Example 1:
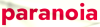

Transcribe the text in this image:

paranoia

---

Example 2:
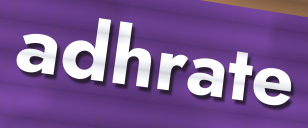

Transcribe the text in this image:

adhrate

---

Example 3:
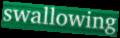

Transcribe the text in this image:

swallowing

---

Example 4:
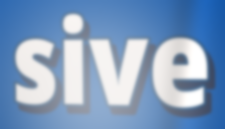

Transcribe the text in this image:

sive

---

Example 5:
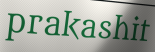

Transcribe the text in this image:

prakashit